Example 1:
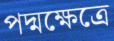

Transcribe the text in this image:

পদ্মক্ষেত্রে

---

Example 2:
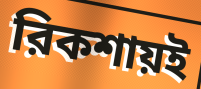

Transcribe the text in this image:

রিকশায়ই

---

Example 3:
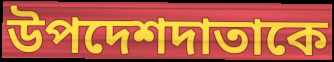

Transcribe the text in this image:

উপদেশদাতাকে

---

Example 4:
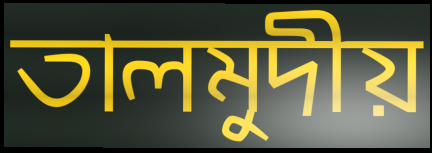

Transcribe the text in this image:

তালমুদীয়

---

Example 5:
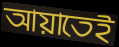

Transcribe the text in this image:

আয়াতেই